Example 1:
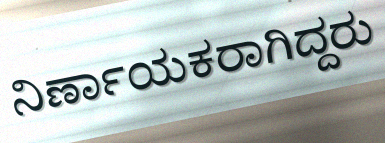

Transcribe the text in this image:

ನಿರ್ಣಾಯಕರಾಗಿದ್ದರು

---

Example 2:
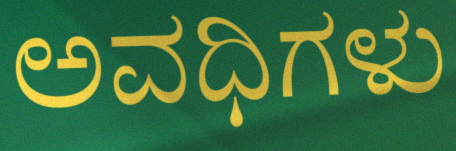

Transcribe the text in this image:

ಅವಧಿಗಳು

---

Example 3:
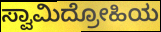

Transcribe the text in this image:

ಸ್ವಾಮಿದ್ರೋಹಿಯ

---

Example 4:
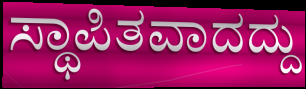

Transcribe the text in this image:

ಸ್ಥಾಪಿತವಾದದ್ದು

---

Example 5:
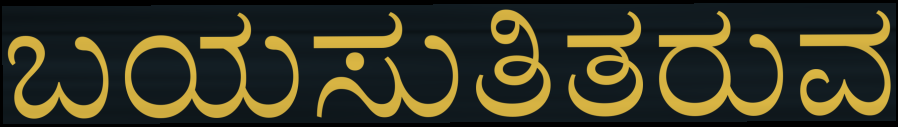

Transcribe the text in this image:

ಬಯಸುತಿತರುವ